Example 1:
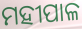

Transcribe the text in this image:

ମହୀପାଳ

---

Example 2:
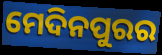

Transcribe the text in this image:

ମେଦିନପୁରର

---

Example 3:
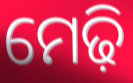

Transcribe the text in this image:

ମେଢ଼ି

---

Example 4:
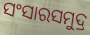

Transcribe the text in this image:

ସଂସାରସମୁଦ୍ର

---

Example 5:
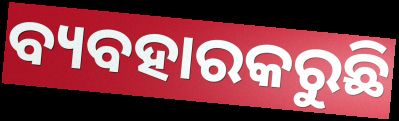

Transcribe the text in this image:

ବ୍ୟବହାରକରୁଛି